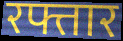
रफ्तार